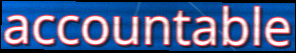
accountable